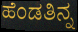
ಹೆಂಡತಿನ್ನ